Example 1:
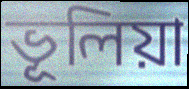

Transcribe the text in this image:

ভূলিয়া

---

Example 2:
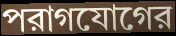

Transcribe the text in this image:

পরাগযোগের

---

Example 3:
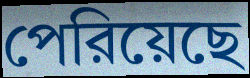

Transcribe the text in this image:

পেরিয়েছে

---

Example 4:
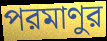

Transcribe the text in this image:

পরমাণুর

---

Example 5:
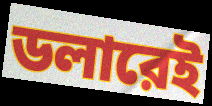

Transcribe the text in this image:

ডলারেই